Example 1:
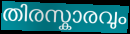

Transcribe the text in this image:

തിരസ്കാരവും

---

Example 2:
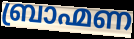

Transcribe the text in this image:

ബ്രാഹ്മണ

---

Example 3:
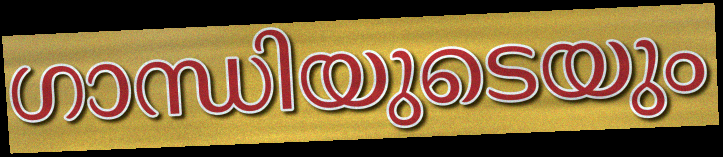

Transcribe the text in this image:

ഗാന്ധിയുടെയും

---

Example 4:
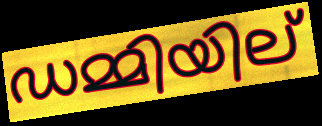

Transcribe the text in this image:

ഡമ്മിയില്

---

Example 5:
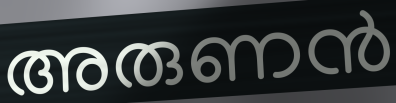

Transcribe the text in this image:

അരുണൻ